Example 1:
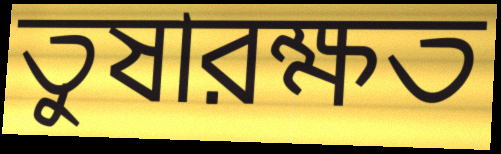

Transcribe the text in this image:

তুষারক্ষত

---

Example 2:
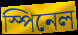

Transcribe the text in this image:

স্পিনেল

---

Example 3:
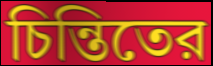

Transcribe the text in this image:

চিন্তিতের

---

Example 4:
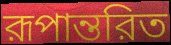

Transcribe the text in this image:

রূপান্তরিত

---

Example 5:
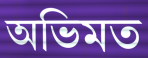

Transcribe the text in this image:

অভিমত